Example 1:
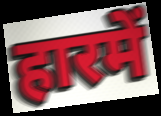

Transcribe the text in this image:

हारमें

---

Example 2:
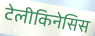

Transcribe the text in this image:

टेलीकिनेसिस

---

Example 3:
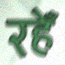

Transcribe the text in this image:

रहेँ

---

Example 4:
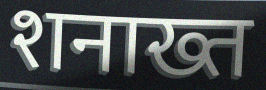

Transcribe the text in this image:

शनाख्त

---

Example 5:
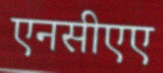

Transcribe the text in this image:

एनसीएए